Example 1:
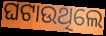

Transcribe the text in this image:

ଘଟାଉଥିଲେ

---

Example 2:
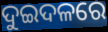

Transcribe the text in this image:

ଦୁଇଦଳରେ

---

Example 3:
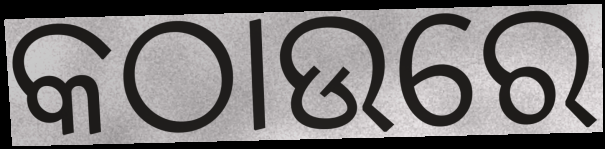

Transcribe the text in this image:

କଠାଉରେ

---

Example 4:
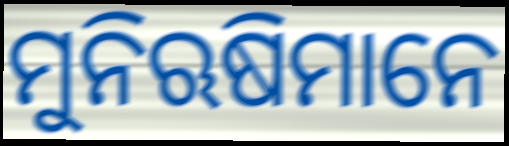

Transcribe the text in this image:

ମୁନିଋଷିମାନେ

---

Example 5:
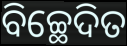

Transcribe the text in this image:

ବିଚ୍ଛେଦିତ